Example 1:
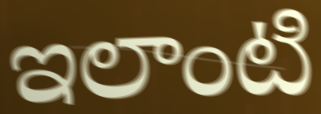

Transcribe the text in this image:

ఇలాంటి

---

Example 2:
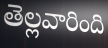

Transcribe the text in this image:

తెల్లవారింది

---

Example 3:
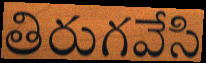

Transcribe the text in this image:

తిరుగవేసి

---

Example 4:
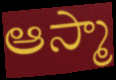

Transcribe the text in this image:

ఆస్మా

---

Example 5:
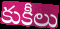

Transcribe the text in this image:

కుకీలు